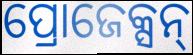
ପ୍ରୋଜେକ୍ସନ୍